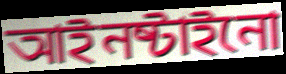
আইনষ্টাইনো